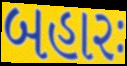
બહારઃ